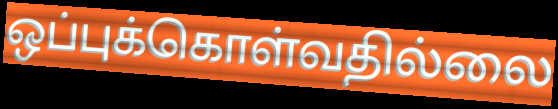
ஒப்புக்கொள்வதில்லை